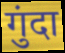
गुंदा